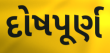
દોષપૂર્ણ